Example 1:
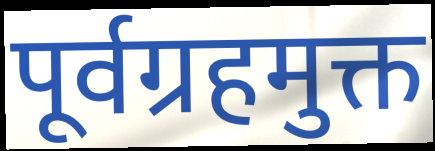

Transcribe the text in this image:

पूर्वग्रहमुक्त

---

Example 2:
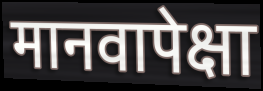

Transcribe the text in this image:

मानवापेक्षा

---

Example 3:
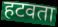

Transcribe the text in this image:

हटवता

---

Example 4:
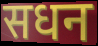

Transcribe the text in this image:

सधन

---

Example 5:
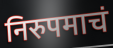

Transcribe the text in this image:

निरुपमाचं